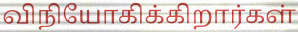
விநியோகிக்கிறார்கள்